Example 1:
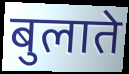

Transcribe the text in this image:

बुलाते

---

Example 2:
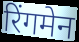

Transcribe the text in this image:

रिंगमेन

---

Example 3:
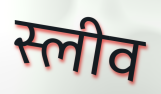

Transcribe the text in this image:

स्लीव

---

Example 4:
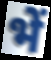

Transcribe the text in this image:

भें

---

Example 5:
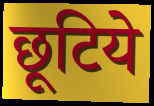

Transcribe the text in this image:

छूटिये